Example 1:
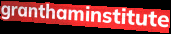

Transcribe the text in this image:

granthaminstitute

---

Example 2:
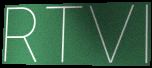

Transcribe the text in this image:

RTVI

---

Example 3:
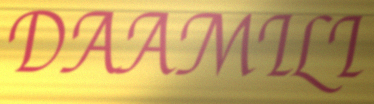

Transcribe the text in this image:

DAAMILI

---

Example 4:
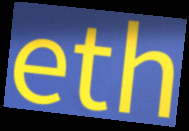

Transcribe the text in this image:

eth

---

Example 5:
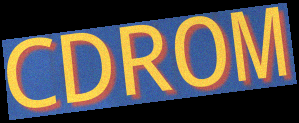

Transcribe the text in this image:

CDROM